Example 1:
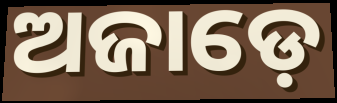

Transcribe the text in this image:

ଅଜାଡ଼େ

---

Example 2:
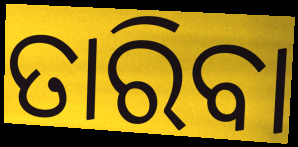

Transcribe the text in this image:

ତାରିବା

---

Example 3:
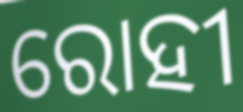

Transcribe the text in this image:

ରୋହୀ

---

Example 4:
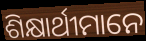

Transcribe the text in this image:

ଶିକ୍ଷାର୍ଥୀମାନେ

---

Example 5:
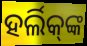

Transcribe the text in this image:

ହର୍ଲିକ୍‌ଙ୍କ